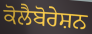
ਕੋਲੈਬੋਰੇਸ਼ਨ